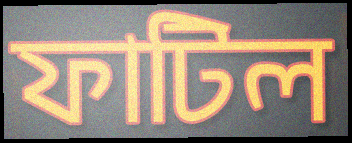
ফাটিল